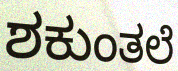
ಶಕುಂತಲೆ